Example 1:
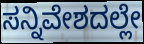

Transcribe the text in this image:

ಸನ್ನಿವೇಶದಲ್ಲೇ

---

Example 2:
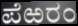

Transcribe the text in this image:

ಪೆಱರಂ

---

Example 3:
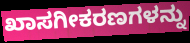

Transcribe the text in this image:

ಖಾಸಗೀಕರಣಗಳನ್ನು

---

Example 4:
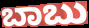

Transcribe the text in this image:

ಬಾಬು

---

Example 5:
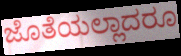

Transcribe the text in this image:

ಜೊತೆಯಲ್ಲಾದರೂ